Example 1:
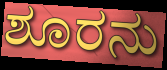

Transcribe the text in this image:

ಶೂರನು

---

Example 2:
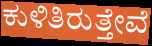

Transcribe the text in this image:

ಕುಳಿತಿರುತ್ತೇವೆ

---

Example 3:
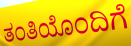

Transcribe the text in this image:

ತಂತಿಯೊಂದಿಗೆ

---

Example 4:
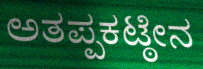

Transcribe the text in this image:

ಅತಪ್ಪಕಟ್ಠೇನ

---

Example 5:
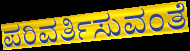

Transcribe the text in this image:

ಪರಿವರ್ತಿಸುವಂತೆ